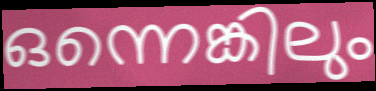
ഒന്നെങ്കിലും